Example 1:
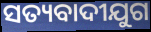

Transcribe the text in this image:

ସତ୍ୟବାଦୀଯୁଗ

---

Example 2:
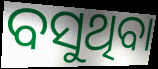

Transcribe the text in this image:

ବସୁଥିବା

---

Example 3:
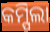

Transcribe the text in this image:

କମ୍ପିଲା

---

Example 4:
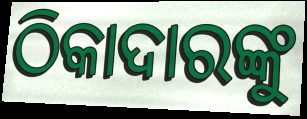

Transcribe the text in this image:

ଠିକାଦାରଙ୍କୁ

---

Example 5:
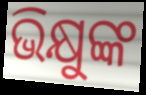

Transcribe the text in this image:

ଭିକ୍ଷୁଙ୍କ